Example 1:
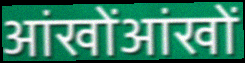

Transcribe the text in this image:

आंखोंआंखों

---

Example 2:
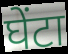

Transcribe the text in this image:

घेंटा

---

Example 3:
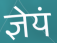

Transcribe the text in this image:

ज्ञेयं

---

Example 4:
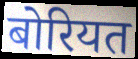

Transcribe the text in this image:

बोरियत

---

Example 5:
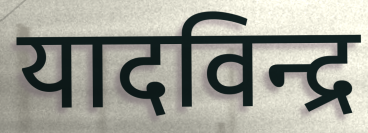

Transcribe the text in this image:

यादविन्द्र